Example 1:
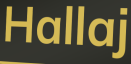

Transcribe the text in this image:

Hallaj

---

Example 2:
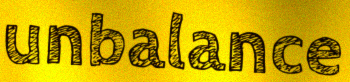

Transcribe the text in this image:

unbalance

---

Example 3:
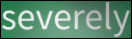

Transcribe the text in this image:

severely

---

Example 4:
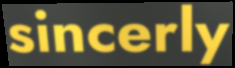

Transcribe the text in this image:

sincerly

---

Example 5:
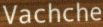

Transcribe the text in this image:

Vachche